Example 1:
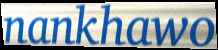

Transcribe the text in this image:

nankhawo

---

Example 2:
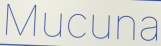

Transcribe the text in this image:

Mucuna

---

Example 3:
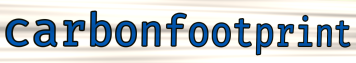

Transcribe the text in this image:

carbonfootprint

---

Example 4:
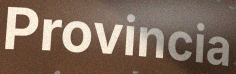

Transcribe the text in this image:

Provincia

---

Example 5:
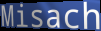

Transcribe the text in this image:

Misach